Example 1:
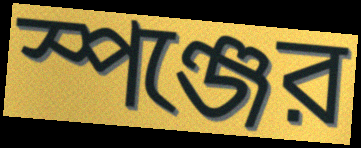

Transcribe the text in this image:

স্পঞ্জের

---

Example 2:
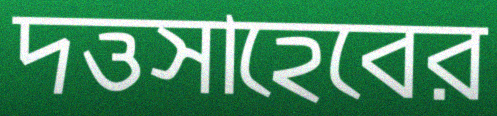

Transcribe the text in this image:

দত্তসাহেবের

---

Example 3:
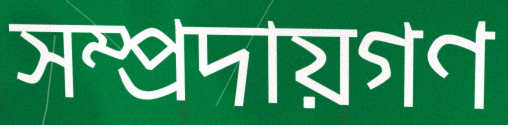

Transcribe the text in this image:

সম্প্রদায়গণ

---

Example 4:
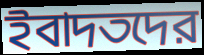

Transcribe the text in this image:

ইবাদতদের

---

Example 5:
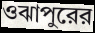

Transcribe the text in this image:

ওঝাপুরের